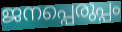
ജനപ്പെരുപ്പം